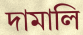
দামালি